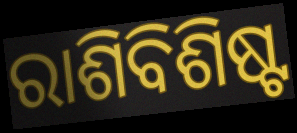
ରାଶିବିଶିଷ୍ଟ